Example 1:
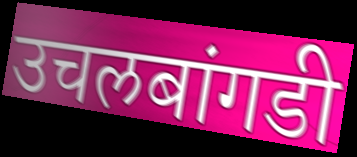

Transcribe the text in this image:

उचलबांगडी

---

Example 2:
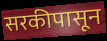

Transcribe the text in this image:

सरकीपासून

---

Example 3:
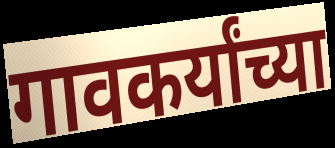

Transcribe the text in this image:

गावकर्यांच्या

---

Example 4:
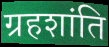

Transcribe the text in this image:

ग्रहशांति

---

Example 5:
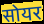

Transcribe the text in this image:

सोयर